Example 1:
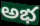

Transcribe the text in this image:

అభ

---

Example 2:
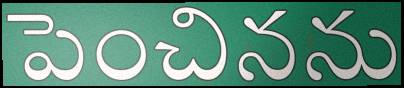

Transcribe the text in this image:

పెంచినను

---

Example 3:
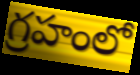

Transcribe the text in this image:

గ్రహంలో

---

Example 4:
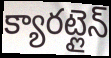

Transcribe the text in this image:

క్యారట్లైన్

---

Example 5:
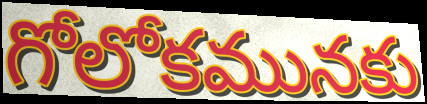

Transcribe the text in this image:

గోలోకమునకు